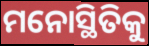
ମନୋସ୍ଥିତିକୁ